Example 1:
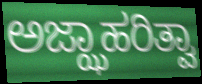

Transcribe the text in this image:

ಅಜ್ಝಾಹರಿತ್ವಾ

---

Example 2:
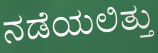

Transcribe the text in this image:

ನಡೆಯಲಿತ್ತು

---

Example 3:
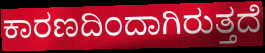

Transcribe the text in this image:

ಕಾರಣದಿಂದಾಗಿರುತ್ತದೆ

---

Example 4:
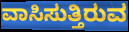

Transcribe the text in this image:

ವಾಸಿಸುತ್ತಿರುವ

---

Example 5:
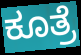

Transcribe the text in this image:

ಕೂತ್ರೆ